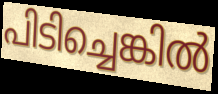
പിടിച്ചെങ്കിൽ